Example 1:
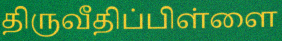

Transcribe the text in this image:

திருவீதிப்பிள்ளை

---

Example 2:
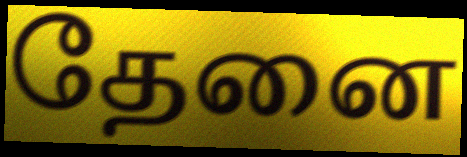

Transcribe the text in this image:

தேனை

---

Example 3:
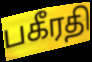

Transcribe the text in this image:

பகீரதி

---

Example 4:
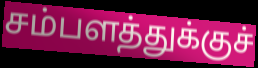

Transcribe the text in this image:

சம்பளத்துக்குச்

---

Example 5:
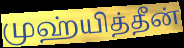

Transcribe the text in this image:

முஹ்யித்தீன்